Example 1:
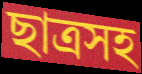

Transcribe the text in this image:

ছাত্রসহ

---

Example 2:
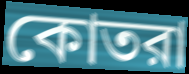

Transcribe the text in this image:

কোতরা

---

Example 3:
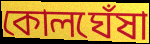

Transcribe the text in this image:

কোলঘেঁষা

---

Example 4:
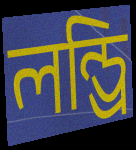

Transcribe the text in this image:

লন্ড্রি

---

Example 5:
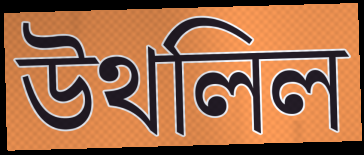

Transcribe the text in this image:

উথলিল